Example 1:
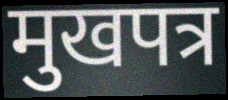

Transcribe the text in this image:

मुखपत्र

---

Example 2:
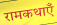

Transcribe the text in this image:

रामकथाएँ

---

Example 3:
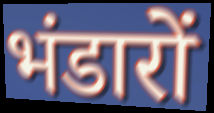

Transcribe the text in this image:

भंडारों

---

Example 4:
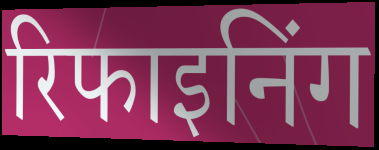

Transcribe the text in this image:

रिफाइनिंग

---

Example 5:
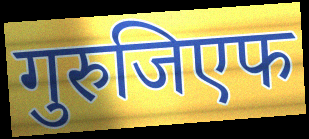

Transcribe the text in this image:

गुरुजिएफ